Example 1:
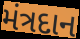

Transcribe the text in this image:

મંત્રદાન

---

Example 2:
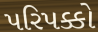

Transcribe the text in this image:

પરિપક્કો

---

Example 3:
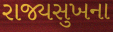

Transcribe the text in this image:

રાજ્યસુખના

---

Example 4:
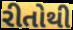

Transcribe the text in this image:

રીતોથી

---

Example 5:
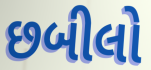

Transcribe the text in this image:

છબીલો